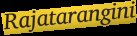
Rajatarangini